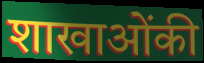
शाखाओंकी